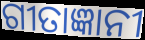
ଗୀତାଜ୍ଞାନୀ